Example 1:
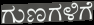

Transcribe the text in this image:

ಗುಣಗಳಿಗೆ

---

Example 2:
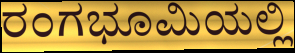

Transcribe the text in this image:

ರಂಗಭೂಮಿಯಲ್ಲಿ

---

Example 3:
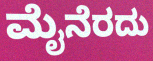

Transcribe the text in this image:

ಮೈನೆರದು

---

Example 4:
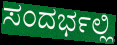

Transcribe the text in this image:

ಸಂದರ್ಭಲ್ಲಿ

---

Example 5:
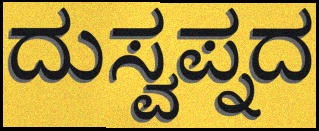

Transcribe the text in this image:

ದುಸ್ವಪ್ನದ